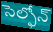
సెల్ఫోన్